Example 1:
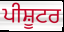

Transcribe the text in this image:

ਪੀਸ਼ੂਟਰ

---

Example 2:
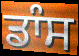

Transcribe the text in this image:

ਡਾੰਸ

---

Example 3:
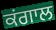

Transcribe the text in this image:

ਕਂਗਾਲ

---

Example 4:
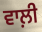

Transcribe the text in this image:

ਵਾਲ਼ੀ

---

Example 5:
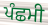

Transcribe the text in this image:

ਪੰਛਮੀ